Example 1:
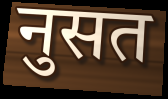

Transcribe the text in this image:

नुसत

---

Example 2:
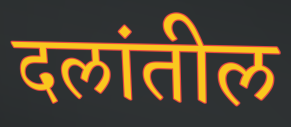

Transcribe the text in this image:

दलांतील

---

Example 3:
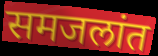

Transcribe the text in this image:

समजलांत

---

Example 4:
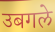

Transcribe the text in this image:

उबगले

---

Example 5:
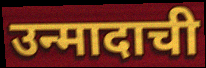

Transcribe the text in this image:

उन्मादाची